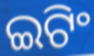
ଇଟିଂ